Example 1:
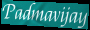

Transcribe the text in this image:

Padmavijay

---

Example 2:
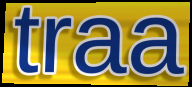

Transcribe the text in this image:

traa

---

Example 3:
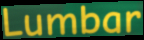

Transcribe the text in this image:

Lumbar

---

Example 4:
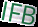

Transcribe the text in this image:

IFB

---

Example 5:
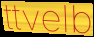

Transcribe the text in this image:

ttvelb